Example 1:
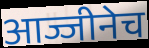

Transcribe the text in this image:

आज्जीनेच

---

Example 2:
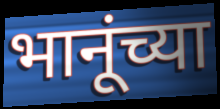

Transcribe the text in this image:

भानूंच्या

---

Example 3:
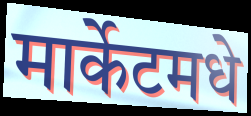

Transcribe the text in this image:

मार्केटमधे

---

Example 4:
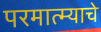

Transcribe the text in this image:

परमात्म्याचे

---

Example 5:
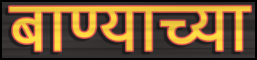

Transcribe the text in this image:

बाण्याच्या